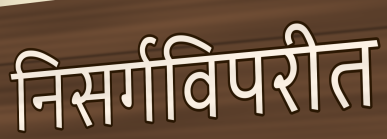
निसर्गविपरीत